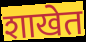
शाखेत